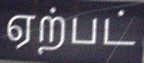
ஏற்பட்